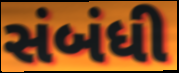
સંબંધી